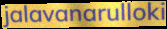
jalavanarulloki